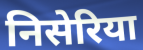
निसेरिया